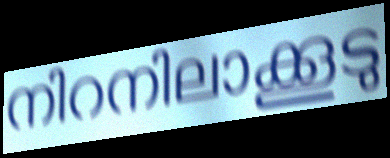
നിറനിലാക്കൂടു